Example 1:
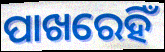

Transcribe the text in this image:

ପାଖରେହିଁ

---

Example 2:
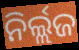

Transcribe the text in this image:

ନିର୍ଲ୍ଲଜ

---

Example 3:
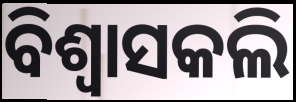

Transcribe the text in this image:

ବିଶ୍ଵାସକଲି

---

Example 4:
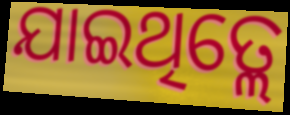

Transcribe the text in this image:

ଯାଇଥିତ୍ଲେ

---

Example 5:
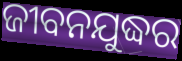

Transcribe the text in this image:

ଜୀବନଯୁଦ୍ଧର